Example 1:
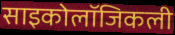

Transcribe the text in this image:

साइकोलॉजिकली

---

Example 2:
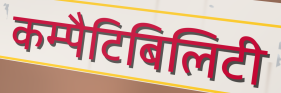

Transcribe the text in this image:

कम्पैटिबिलिटी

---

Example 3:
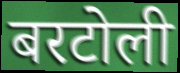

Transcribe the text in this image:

बरटोली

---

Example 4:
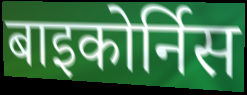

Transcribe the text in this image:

बाइकोर्निस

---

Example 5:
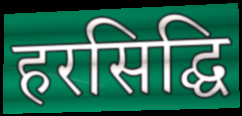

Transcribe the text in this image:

हरसिद्घि